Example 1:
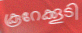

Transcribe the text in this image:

കൂറേക്കൂടി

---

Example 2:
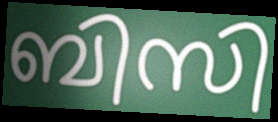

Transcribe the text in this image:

ബിസി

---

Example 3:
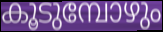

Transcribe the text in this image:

കൂടുമ്പോഴും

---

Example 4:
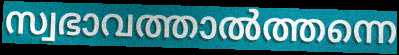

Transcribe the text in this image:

സ്വഭാവത്താൽത്തന്നെ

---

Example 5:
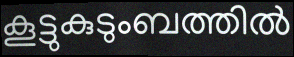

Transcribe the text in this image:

കൂട്ടുകുടുംബത്തിൽ